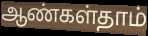
ஆண்கள்தாம்